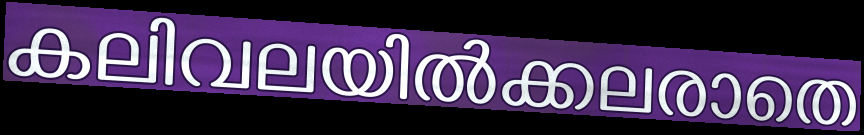
കലിവലയിൽക്കലരാതെ